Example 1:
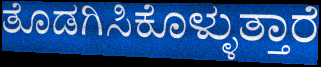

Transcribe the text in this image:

ತೊಡಗಿಸಿಕೊಳ್ಳುತ್ತಾರೆ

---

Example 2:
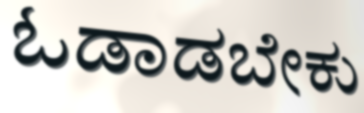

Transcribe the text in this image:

ಓಡಾಡಬೇಕು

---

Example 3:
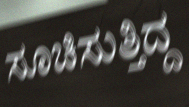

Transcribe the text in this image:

ಸೂಚಿಸುತ್ತಿದ್ದ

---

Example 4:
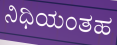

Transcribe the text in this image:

ನಿಧಿಯಂತಹ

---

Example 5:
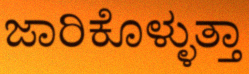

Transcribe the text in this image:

ಜಾರಿಕೊಳ್ಳುತ್ತಾ